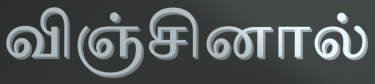
விஞ்சினால்